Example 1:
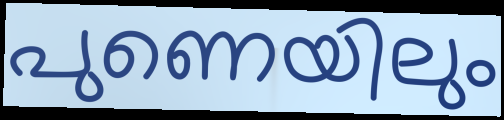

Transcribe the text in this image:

പുണെയിലും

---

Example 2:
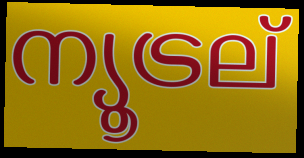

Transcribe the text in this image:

ന്യൂട്രല്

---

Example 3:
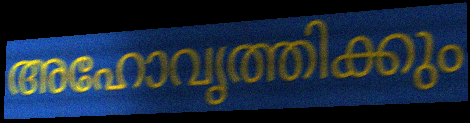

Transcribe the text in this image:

അഹോവൃത്തിക്കും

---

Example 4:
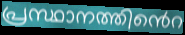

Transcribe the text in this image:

പ്രസ്ഥാനത്തിൻെറ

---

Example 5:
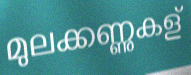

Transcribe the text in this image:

മുലക്കണ്ണുകള്